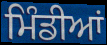
ਮਿੰਡੀਆਂ